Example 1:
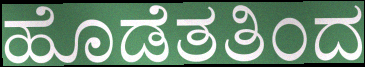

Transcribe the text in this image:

ಹೊಡೆತತಿಂದ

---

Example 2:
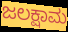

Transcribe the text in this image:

ಜಲಕ್ಷಾಮ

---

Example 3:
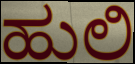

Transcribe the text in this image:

ಹುಲಿ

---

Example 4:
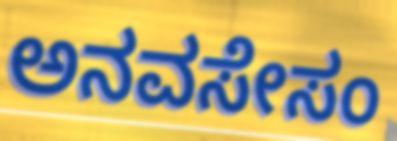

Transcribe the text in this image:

ಅನವಸೇಸಂ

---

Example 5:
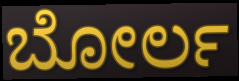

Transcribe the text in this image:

ಬೋರ್ಲ